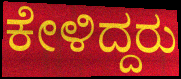
ಕೇಳಿದ್ದರು